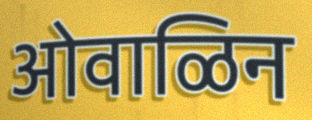
ओवाळिन